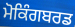
ਮੋਕਿੰਗਬਰਡ